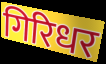
गिरिधर